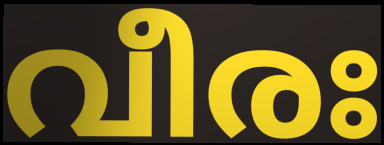
വീരഃ